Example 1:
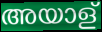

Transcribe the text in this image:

അയാള്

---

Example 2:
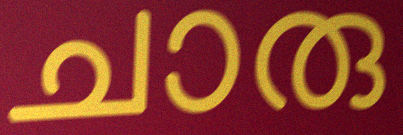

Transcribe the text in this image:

ചാരു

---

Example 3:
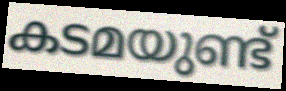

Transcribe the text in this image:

കടമയുണ്ട്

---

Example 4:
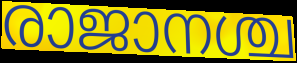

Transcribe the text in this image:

രാജാനശ്ച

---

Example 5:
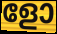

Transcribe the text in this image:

ളോ